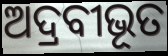
ଅଦ୍ରବୀଭୂତ